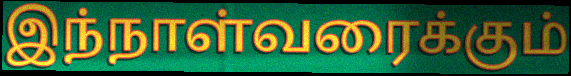
இந்நாள்வரைக்கும்